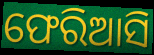
ଫେରିଆସି